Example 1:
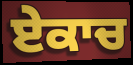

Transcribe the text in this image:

ਏਕਾਚ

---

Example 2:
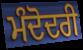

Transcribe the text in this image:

ਮੰਦੋਦਰੀ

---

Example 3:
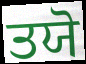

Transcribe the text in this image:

ਤਯੋ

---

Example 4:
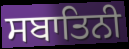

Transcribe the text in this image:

ਸਬਾਤਿਨੀ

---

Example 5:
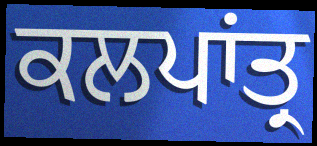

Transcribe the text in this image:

ਕਲਪਾਂਤ੍ਰ